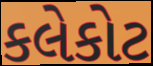
કલેકોટ